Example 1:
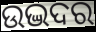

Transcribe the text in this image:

ଉଦ୍ଭଦର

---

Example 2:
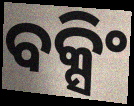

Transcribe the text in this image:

ବକ୍ସିଂ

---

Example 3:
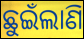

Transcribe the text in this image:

ଛୁଇଁଲାଣି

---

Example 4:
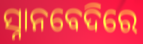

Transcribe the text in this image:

ସ୍ନାନବେଦିରେ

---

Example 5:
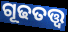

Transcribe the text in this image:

ଗୂଢତତ୍ତ୍ୱ